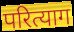
परित्याग